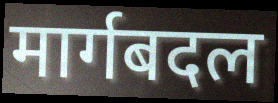
मार्गबदल